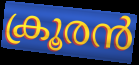
ക്രൂരൻ